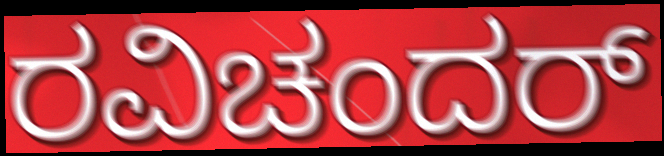
ರವಿಚಂದರ್